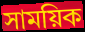
সাময়িক